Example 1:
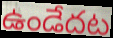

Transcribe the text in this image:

ఉండేదట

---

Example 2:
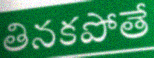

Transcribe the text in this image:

తినకపోతే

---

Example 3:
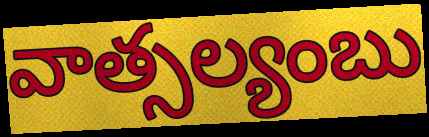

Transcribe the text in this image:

వాత్సల్యంబు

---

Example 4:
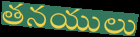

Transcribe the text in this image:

తనయులు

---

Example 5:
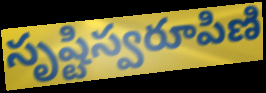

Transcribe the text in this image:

సృష్టిస్వరూపిణి